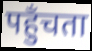
पहुँचता